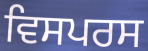
ਵਿਸਪਰਸ